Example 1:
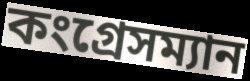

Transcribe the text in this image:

কংগ্রেসম্যান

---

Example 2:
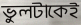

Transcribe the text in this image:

ভুলটাকেই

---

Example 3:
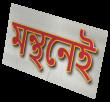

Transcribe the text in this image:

মন্থনেই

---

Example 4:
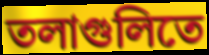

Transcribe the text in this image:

তলাগুলিতে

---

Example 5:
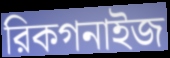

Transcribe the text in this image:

রিকগনাইজ